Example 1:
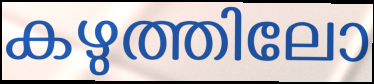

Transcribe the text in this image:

കഴുത്തിലോ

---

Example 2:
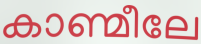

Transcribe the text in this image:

കാണ്മീലേ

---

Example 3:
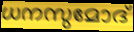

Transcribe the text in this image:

ധനസുമോദ്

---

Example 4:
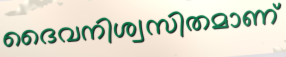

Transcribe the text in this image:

ദൈവനിശ്വസിതമാണ്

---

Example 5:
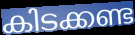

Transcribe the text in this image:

കിടക്കണ്ട